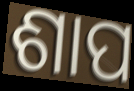
ଶାପ